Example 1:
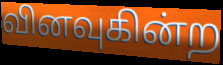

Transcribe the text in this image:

வினவுகின்ற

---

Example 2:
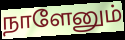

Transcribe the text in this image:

நாளேனும்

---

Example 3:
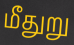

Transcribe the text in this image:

மீதுறு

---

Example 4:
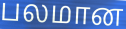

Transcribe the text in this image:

பலமான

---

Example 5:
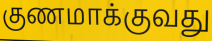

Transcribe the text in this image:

குணமாக்குவது